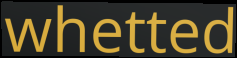
whetted